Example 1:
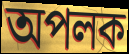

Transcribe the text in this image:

অপলক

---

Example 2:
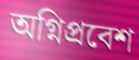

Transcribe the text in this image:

অগ্নিপ্রবেশ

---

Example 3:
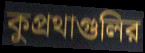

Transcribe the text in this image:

কুপ্রথাগুলির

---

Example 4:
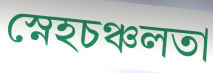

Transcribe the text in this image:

স্নেহচঞ্চলতা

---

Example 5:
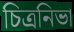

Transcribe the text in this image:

চিত্রনিভা